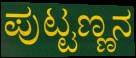
ಪುಟ್ಟಣ್ಣನ